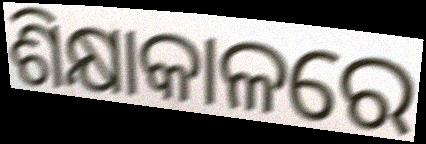
ଶିକ୍ଷାକାଳରେ